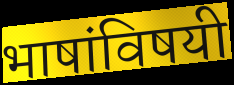
भाषांविषयी